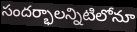
సందర్భాలన్నిటిలోనూ